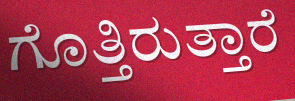
ಗೊತ್ತಿರುತ್ತಾರೆ